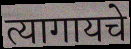
त्यागायचे